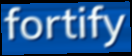
fortify